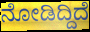
ನೋಡಿದ್ದಿದೆ